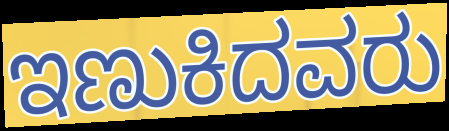
ಇಣುಕಿದವರು